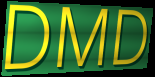
DMD